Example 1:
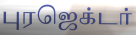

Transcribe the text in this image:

புரஜெக்டர்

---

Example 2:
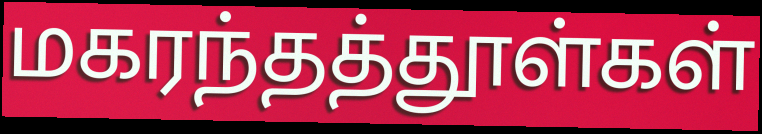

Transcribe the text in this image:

மகரந்தத்தூள்கள்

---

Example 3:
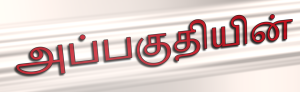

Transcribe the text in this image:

அப்பகுதியின்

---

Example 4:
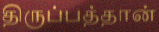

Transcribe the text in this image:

திருப்பத்தான்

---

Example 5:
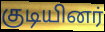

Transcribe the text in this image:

குடியினர்